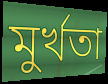
মুর্খতা